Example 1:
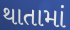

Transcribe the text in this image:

થાતામાં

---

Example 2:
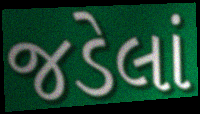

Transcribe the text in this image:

જડેલાં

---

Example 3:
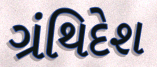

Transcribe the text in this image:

ગ્રંથિદેશ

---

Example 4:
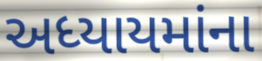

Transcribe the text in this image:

અધ્યાયમાંના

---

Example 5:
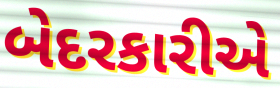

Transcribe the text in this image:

બેદરકારીએ